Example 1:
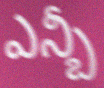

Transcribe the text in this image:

ఎన్బీ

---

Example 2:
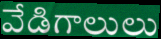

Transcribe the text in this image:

వేడిగాలులు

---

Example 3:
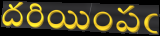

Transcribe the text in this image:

దరియింపఁ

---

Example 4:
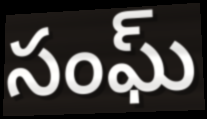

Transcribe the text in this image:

సంఘ్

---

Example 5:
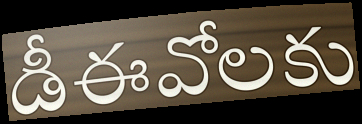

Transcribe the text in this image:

డీఈవోలకు